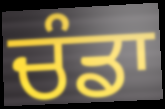
ਚੰਡਾ